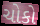
ચોકો